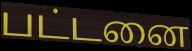
பட்டனை